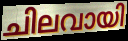
ചിലവായി